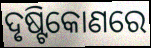
ଦୃଷ୍ଟିକୋଣରେ